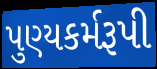
પુણ્યકર્મરૂપી